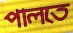
পালতে